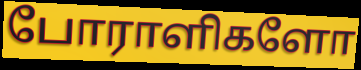
போராளிகளோ